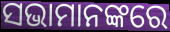
ସଭାମାନଙ୍କରେ